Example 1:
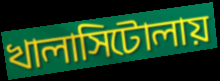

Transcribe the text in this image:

খালাসিটোলায়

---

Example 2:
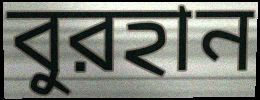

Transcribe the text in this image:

বুরহান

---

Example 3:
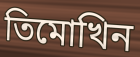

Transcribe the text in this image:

তিমোখিন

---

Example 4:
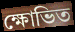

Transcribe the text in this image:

ক্ষোভিত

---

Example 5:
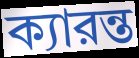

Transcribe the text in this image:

ক্যারন্ত